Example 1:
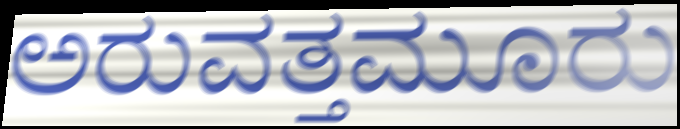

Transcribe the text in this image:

ಅರುವತ್ತಮೂರು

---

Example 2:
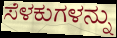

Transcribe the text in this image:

ಸೆಳಕುಗಳನ್ನು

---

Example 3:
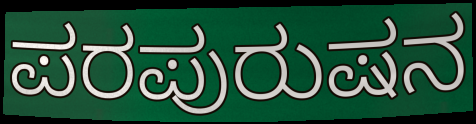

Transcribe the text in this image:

ಪರಪುರುಷನ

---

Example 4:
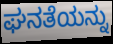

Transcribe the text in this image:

ಘನತೆಯನ್ನು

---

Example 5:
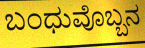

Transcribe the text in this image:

ಬಂಧುವೊಬ್ಬನ